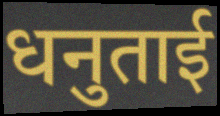
धनुताई